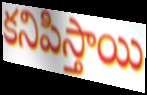
కనిపిస్తాయి